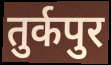
तुर्कपुर